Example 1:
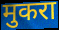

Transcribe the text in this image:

मुकरा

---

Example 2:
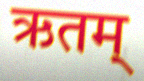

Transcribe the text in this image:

ऋतम्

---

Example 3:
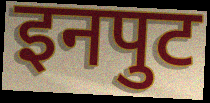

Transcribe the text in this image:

इनपुट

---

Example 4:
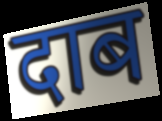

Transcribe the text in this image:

दाब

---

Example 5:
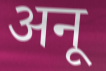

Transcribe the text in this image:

अनू